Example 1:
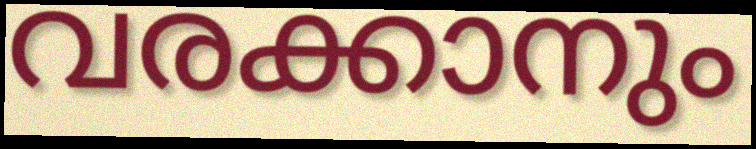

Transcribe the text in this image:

വരക്കാനും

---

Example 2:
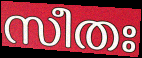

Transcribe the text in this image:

സീതഃ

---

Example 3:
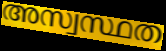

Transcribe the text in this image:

അസ്വസ്ഥത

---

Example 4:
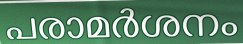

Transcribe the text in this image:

പരാമർശനം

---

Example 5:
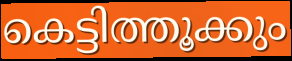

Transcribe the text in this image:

കെട്ടിത്തൂക്കും